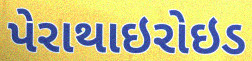
પેરાથાઇરોઇડ